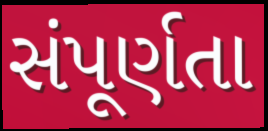
સંપૂર્ણતા